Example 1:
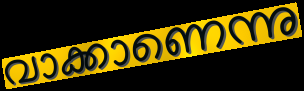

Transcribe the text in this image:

വാക്കാണെന്നു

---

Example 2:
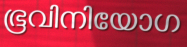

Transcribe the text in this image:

ഭൂവിനിയോഗ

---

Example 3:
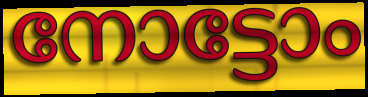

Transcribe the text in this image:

നോട്ടോം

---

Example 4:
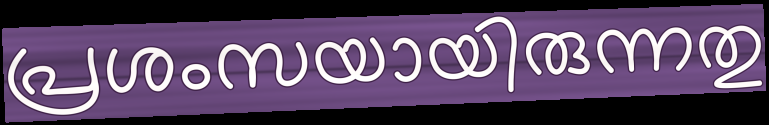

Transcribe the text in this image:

പ്രശംസയായിരുന്നതു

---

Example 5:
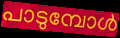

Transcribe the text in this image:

പാടുമ്പോൾ